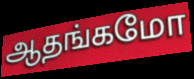
ஆதங்கமோ